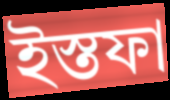
ইস্তফা